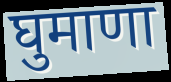
घुमाणा